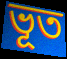
ভূত